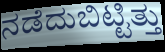
ನಡೆದುಬಿಟ್ಟಿತ್ತು